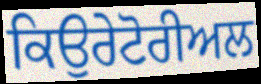
ਕਿਉਰੇਟੋਰੀਅਲ